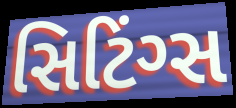
સિટિંગ્સ